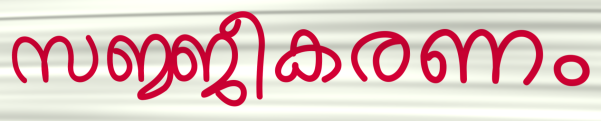
സജ്ജീകരണം